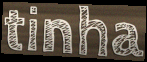
tinha